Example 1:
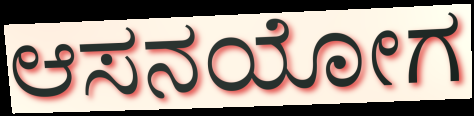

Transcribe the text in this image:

ಆಸನಯೋಗ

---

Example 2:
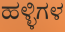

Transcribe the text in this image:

ಹಳ್ಳಿಗಳ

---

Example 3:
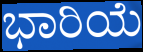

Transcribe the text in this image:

ಭಾರಿಯೆ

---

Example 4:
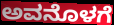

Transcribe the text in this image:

ಅವನೊಳಗೆ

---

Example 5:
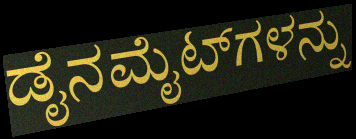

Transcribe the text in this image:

ಡೈನಮೈಟ್‌ಗಳನ್ನು